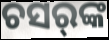
ଚସର୍‌ଙ୍କ